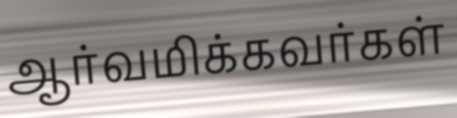
ஆர்வமிக்கவர்கள்